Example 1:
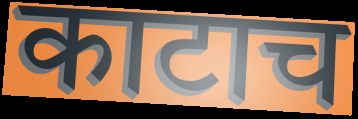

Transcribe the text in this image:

काटाच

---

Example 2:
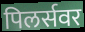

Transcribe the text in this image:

पिलर्सवर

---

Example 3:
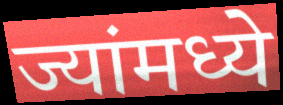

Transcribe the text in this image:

ज्यांमध्ये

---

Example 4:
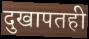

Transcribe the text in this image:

दुखापतही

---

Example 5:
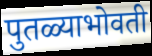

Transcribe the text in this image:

पुतळ्याभोवती